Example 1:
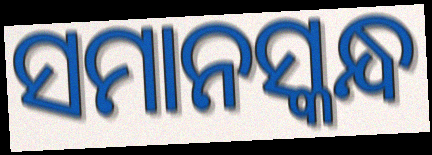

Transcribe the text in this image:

ସମାନସ୍କନ୍ଧ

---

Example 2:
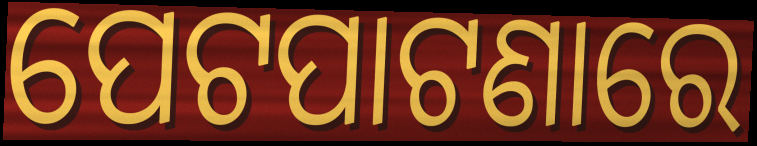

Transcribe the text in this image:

ପେଟପାଟଣାରେ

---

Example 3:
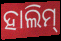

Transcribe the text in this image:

ହାଲିମ୍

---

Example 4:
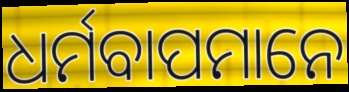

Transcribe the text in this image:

ଧର୍ମବାପମାନେ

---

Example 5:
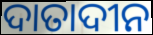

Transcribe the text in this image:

ଦାତାଦୀନ